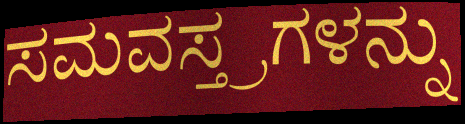
ಸಮವಸ್ತ್ರಗಳನ್ನು